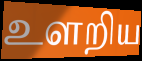
உளறிய